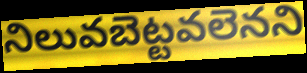
నిలువబెట్టవలెనని